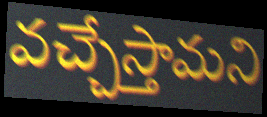
వచ్చేస్తామని